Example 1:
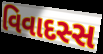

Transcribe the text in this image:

વિવાદસ્સ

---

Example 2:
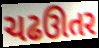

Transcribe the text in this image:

ચઢઊતર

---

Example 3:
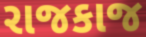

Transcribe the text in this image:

રાજકાજ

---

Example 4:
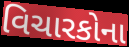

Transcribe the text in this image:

વિચારકોના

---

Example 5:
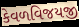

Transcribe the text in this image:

કેવળવિજયજી